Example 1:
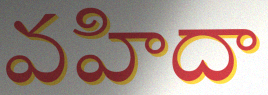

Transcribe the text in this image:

వహిదా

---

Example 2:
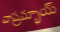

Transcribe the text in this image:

వాష్రమ్భాయ్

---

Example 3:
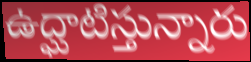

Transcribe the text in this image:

ఉద్ఘాటిస్తున్నారు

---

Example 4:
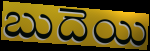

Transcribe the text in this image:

బుదెయి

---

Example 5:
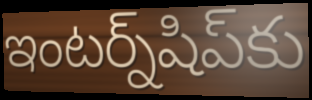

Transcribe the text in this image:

ఇంటర్న్‌షిప్‌కు